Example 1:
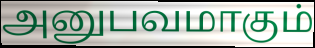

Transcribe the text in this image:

அனுபவமாகும்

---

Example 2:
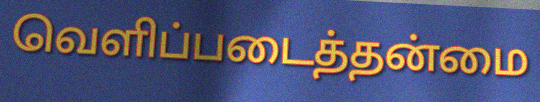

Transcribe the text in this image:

வெளிப்படைத்தன்மை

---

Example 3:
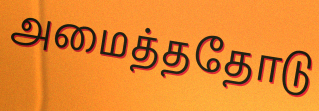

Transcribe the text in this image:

அமைத்ததோடு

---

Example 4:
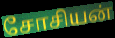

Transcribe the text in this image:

சோசியன்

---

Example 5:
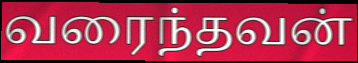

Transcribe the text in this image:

வரைந்தவன்